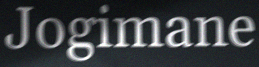
Jogimane